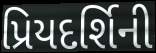
પ્રિયદર્શિની